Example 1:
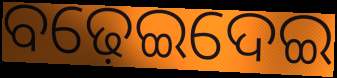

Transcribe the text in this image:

ବଢ଼େଇଦେଇ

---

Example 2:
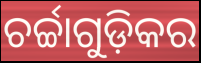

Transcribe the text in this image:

ଚର୍ଚ୍ଚାଗୁଡ଼ିକର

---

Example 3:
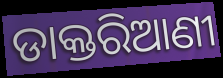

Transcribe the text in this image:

ଡାକ୍ତରିଆଣୀ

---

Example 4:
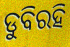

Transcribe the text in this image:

ଡୁବିରହି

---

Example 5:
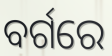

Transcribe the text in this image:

ବର୍ଗରେ